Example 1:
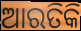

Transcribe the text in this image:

ଆରତିକି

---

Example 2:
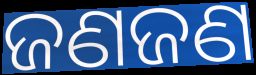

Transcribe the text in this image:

ଜଣଜଣ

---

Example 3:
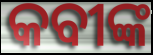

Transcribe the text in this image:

କବୀଙ୍କ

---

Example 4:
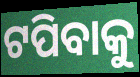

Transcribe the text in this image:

ଟପିବାକୁ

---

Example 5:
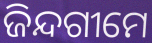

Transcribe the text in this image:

ଜିନ୍ଦଗୀମେ